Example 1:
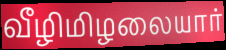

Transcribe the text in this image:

வீழிமிழலையார்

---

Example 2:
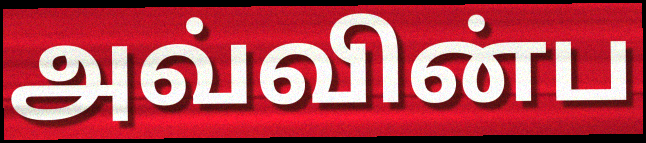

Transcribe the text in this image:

அவ்வின்ப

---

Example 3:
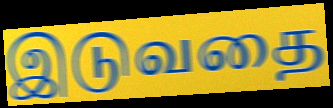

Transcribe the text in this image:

இடுவதை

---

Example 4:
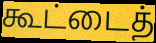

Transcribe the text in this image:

கூட்டைத்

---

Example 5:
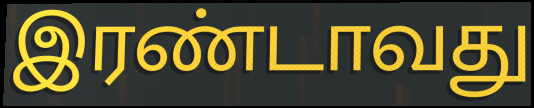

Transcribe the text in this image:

இரண்டாவது